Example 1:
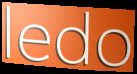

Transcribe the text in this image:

ledo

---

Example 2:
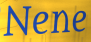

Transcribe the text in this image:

Nene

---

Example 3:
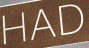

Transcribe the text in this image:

HAD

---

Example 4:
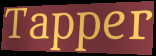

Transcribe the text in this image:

Tapper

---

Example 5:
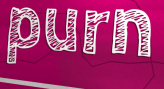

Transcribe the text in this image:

purn